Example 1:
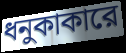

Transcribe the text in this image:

ধনুকাকারে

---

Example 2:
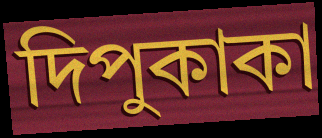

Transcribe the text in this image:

দিপুকাকা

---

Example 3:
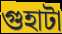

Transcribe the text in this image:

গুহাটা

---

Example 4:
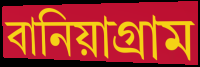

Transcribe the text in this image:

বানিয়াগ্রাম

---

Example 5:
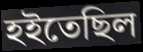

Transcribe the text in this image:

হইতেছিল